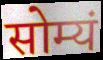
सोम्यं